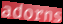
adorns